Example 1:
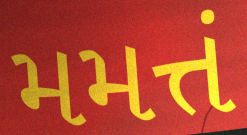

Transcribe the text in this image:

મમત્તં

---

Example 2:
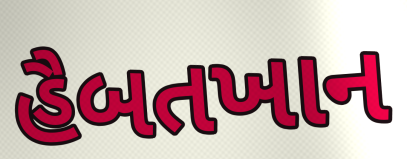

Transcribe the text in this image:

હૈબતખાન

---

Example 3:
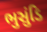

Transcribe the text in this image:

ભુસુંડિ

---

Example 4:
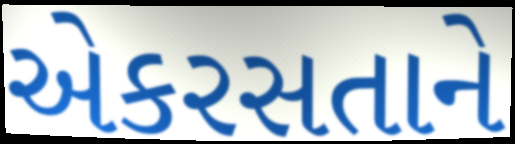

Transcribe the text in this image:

એકરસતાને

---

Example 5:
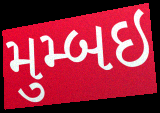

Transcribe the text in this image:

મુમ્બઇ